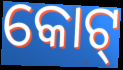
କୋଟ୍